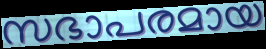
സഭാപരമായ